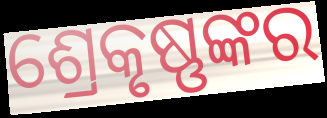
ଶ୍ରେକୃଷ୍ଣଙ୍କର